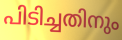
പിടിച്ചതിനും